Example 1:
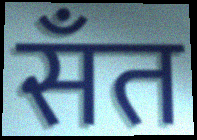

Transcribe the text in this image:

सँत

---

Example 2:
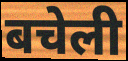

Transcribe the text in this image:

बचेली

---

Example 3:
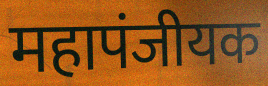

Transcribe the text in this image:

महापंजीयक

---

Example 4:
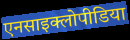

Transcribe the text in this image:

एनसाइक्लोपीडिया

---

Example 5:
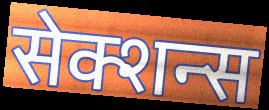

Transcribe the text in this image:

सेक्शन्स